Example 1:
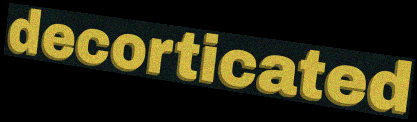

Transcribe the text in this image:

decorticated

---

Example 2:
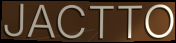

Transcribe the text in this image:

JACTTO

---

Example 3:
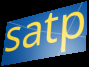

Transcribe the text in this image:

satp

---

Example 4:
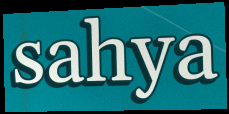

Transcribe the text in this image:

sahya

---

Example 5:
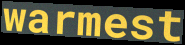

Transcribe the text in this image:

warmest